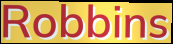
Robbins